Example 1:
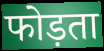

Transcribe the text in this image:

फोड़ता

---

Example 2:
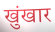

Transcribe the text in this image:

खुंखार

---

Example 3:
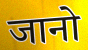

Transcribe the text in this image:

जानो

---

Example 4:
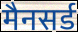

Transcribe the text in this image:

मैनसर्ड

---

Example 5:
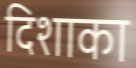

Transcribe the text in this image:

दिशाका